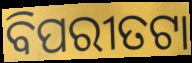
ବିପରୀତଟା